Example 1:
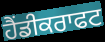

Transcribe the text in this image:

ਹੈਂਡੀਕਰਾਫਟ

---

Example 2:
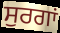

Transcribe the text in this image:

ਸੁਰਗਾਂ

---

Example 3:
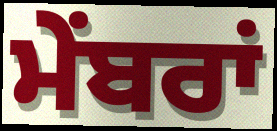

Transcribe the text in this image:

ਮੇਂਬਰਾਂ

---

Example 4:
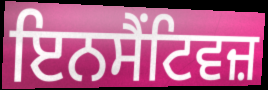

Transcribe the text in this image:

ਇਨਸੈਂਟਿਵਜ਼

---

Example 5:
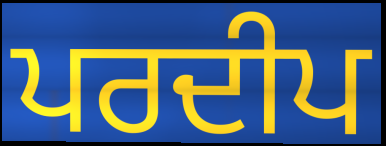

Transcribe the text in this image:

ਪਰਦੀਪ